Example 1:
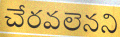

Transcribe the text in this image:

చేరవలెనని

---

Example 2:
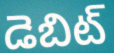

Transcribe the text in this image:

డెబిట్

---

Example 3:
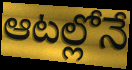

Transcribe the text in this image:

ఆటల్లోనే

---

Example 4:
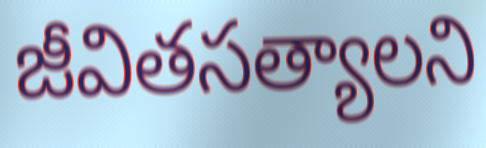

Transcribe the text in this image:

జీవితసత్యాలని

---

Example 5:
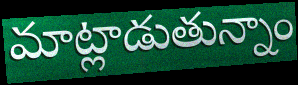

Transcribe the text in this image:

మాట్లాడుతున్నాం